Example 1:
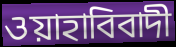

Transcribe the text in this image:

ওয়াহাবিবাদী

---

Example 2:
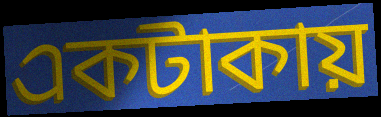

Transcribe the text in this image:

একটাকায়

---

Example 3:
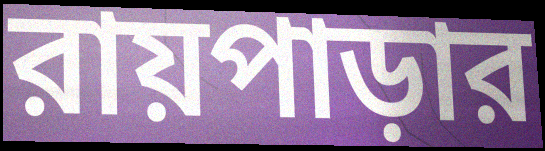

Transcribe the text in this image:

রায়পাড়ার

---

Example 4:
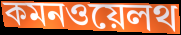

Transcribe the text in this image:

কমনওয়েলথ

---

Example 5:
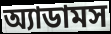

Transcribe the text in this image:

অ্যাডামস